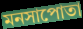
মনসাপোতা